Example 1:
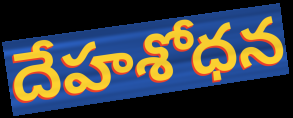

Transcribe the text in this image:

దేహశోధన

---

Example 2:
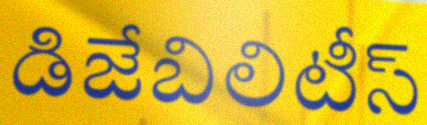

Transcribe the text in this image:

డిజేబిలిటీస్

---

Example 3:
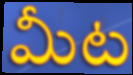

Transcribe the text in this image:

మీట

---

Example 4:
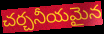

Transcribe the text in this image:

చర్చనీయమైన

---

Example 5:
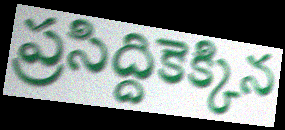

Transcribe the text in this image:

ప్రసిద్దికెక్కిన